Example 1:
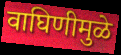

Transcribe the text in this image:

वाघिणीमुळे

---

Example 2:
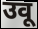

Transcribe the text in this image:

उवू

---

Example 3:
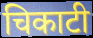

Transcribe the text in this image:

चिकाटी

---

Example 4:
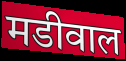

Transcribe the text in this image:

मडीवाल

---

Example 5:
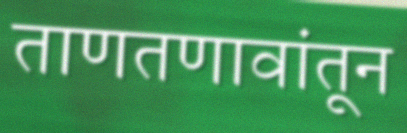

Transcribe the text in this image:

ताणतणावांतून